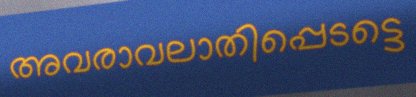
അവരാവലാതിപ്പെടട്ടെ